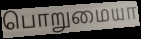
பொறுமையா